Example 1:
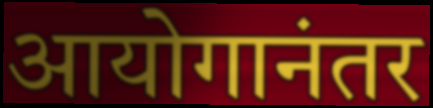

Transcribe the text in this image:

आयोगानंतर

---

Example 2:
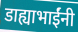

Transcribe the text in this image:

डाह्याभाईंनी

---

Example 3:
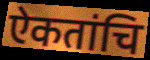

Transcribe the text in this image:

ऐकतांचि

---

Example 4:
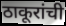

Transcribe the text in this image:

ठाकूरांची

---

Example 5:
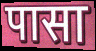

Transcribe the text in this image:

पासा